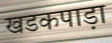
खडकपाड़ा